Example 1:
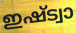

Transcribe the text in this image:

ഇഷ്ട്വാ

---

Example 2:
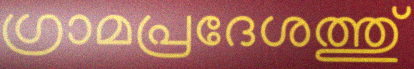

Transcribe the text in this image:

ഗ്രാമപ്രദേശത്തു്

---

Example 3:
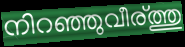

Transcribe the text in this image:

നിറഞ്ഞുവീര്ത്തു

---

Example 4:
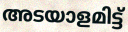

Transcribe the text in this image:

അടയാളമിട്ട്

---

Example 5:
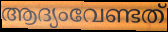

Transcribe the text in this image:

ആദ്യംവേണ്ടത്